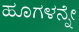
ಹೂಗಳನ್ನೇ